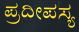
ಪ್ರದೀಪಸ್ಯ